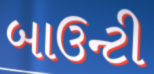
બાઉન્ટી